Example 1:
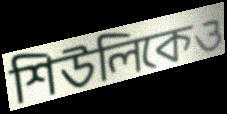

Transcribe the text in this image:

শিউলিকেও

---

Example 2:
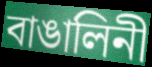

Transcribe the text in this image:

বাঙালিনী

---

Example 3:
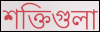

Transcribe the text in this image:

শক্তিগুলা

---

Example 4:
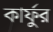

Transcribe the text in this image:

কার্ফুর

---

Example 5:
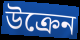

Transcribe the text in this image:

উক্রেন